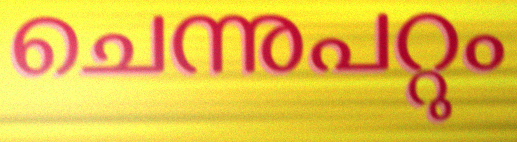
ചെന്നുപറ്റും